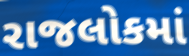
રાજલોકમાં